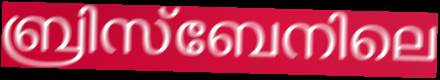
ബ്രിസ്ബേനിലെ